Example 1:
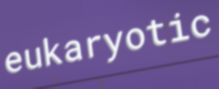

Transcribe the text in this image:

eukaryotic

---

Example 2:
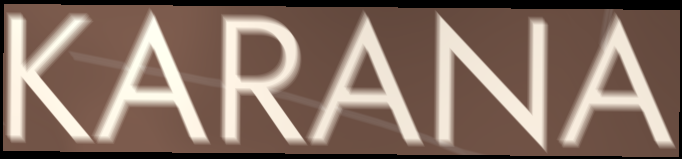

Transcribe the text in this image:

KARANA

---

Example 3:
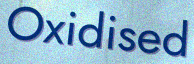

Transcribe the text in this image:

Oxidised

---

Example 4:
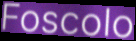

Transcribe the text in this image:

Foscolo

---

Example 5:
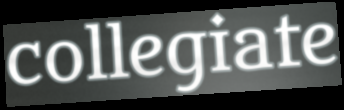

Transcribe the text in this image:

collegiate